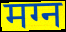
मग्‍न